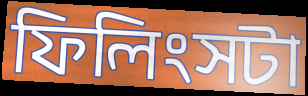
ফিলিংসটা